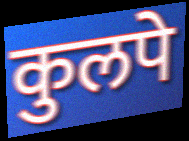
कुलपे